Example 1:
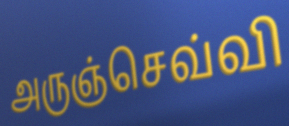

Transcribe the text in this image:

அருஞ்செவ்வி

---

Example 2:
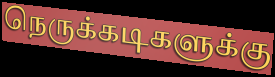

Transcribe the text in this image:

நெருக்கடிகளுக்கு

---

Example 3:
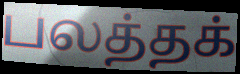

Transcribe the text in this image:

பலத்தக்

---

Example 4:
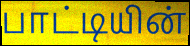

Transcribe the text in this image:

பாட்டியின்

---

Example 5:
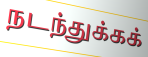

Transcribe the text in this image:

நடந்துக்கக்